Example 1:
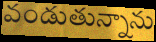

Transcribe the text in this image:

వండుతున్నాను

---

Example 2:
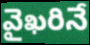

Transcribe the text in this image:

వైఖరినే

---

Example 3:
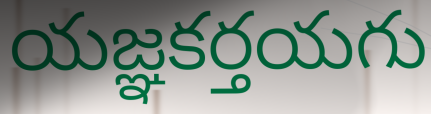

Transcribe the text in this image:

యజ్ఞకర్తయగు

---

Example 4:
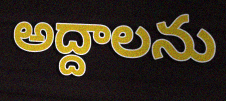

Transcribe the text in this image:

అద్దాలను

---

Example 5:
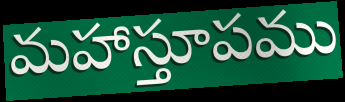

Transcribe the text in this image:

మహాస్తూపము